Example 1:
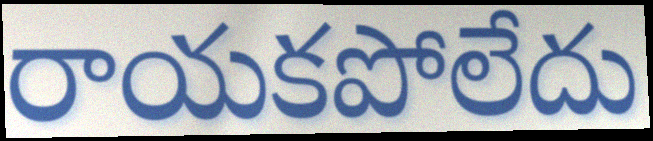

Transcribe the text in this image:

రాయకపోలేదు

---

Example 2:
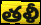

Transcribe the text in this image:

తళీ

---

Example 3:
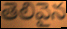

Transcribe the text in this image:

తెలివైన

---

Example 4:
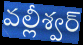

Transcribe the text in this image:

వల్లీశ్వర్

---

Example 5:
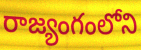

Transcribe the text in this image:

రాజ్యంగంలోని